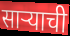
साऱ्याची